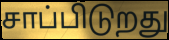
சாப்பிடுறது